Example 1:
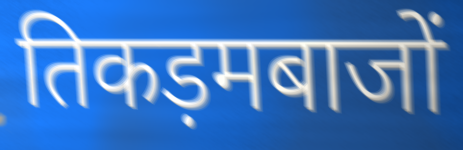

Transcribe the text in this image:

तिकड़मबाजों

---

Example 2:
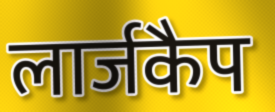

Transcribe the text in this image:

लार्जकैप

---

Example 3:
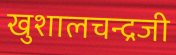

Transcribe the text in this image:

खुशालचन्द्रजी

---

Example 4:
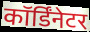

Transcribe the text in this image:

कॉर्डिंनेटर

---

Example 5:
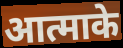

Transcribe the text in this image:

आत्माके